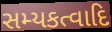
સમ્યકત્વાદિ